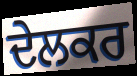
ਦੇਲਕਰ